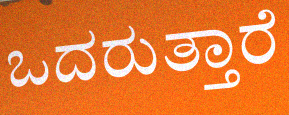
ಒದರುತ್ತಾರೆ